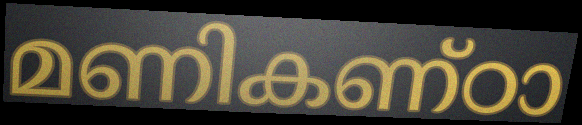
മണികണ്ഠാ